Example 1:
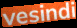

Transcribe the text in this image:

vesindi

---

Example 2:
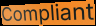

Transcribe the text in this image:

Compliant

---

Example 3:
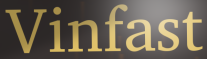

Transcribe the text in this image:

Vinfast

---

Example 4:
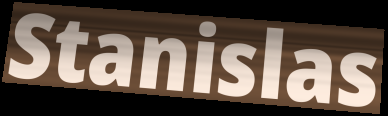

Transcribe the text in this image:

Stanislas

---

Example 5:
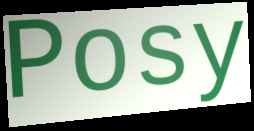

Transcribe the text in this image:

Posy